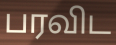
பரவிட